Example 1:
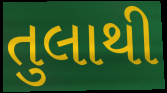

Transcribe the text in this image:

તુલાથી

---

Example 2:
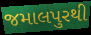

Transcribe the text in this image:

જમાલપુરથી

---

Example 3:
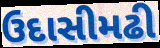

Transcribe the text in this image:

ઉદાસીમઢી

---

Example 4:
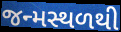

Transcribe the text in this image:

જન્મસ્થળથી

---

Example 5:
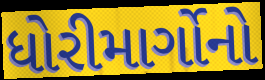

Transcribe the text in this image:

ધોરીમાર્ગોનો